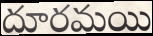
దూరమయి